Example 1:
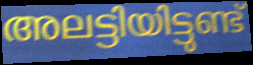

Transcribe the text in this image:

അലട്ടിയിട്ടുണ്ട്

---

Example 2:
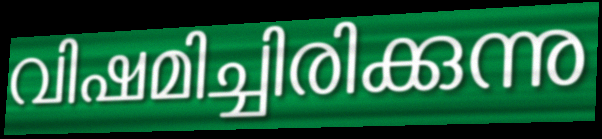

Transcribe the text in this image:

വിഷമിച്ചിരിക്കുന്നു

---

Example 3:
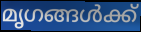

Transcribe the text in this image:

മൃഗങ്ങൾക്ക്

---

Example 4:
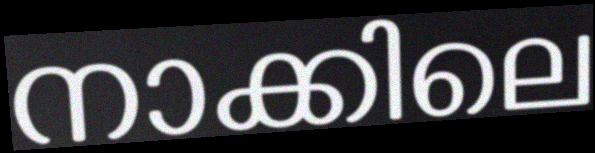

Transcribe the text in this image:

നാക്കിലെ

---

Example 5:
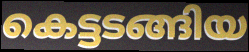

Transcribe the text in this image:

കെട്ടടങ്ങിയ